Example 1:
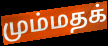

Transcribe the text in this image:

மும்மதக்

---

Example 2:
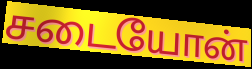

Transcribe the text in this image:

சடையோன்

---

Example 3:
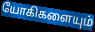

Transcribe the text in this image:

யோகிகளையும்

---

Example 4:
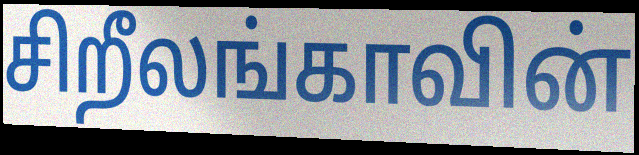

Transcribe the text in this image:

சிறீலங்காவின்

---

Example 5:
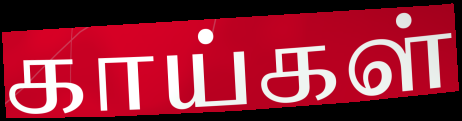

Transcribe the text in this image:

காய்கள்